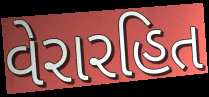
વેરારહિત